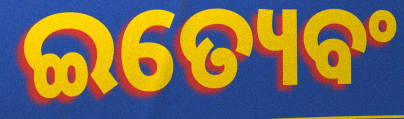
ଇତ୍ୟେବଂ